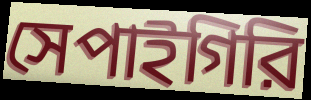
সেপাইগিরি